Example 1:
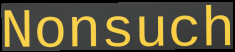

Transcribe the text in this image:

Nonsuch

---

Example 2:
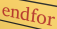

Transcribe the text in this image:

endfor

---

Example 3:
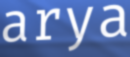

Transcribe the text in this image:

arya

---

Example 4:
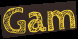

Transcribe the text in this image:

Gam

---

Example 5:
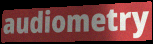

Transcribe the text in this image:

audiometry